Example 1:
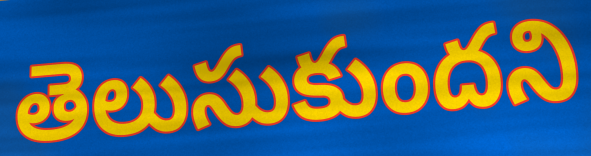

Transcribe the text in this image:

తెలుసుకుందని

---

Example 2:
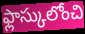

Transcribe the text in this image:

ఫ్లాస్కులోంచి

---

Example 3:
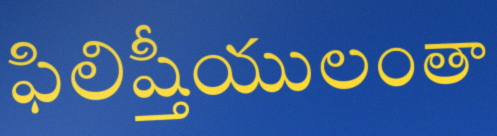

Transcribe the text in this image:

ఫిలిష్తీయులంతా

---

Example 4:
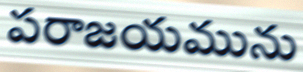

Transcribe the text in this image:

పరాజయమును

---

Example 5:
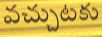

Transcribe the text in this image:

వచ్చుటకు